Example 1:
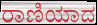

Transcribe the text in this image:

ರಾಣಿಯಾದ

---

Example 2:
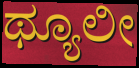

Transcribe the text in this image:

ಥ್ಯೂಲೀ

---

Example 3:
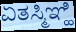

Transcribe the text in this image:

ಏತಸ್ಮಿಞ್ಹಿ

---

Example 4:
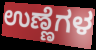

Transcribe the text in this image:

ಉಣ್ಣೆಗಳ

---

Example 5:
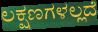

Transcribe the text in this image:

ಲಕ್ಷಣಗಳಲ್ಲದೆ